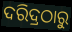
ଦରିଦ୍ରଠାରୁ